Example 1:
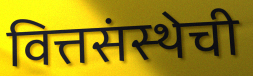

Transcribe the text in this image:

वित्तसंस्थेची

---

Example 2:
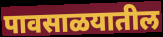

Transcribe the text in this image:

पावसाळयातील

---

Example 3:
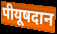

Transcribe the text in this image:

पीयूषदान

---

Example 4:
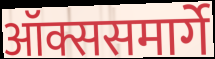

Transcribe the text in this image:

ऑक्ससमार्गे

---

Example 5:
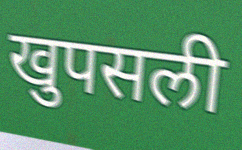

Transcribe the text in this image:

खुपसली